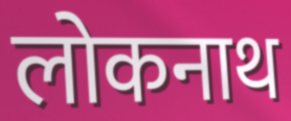
लोकनाथ